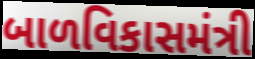
બાળવિકાસમંત્રી